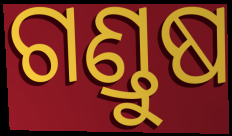
ଗଣ୍ଡୁଷ